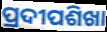
ପ୍ରଦୀପଶିଖା